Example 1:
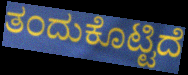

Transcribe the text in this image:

ತಂದುಕೊಟ್ಟಿದೆ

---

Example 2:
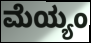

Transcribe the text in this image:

ಮೆಯ್ಯಂ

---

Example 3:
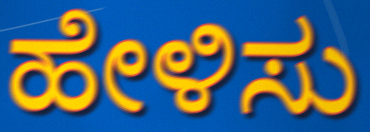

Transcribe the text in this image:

ಹೇಳಿಸು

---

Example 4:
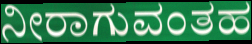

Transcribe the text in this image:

ನೀರಾಗುವಂತಹ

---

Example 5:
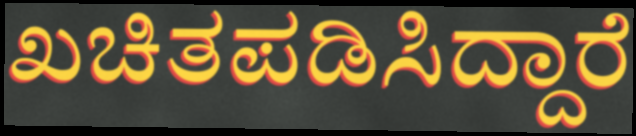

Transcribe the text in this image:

ಖಚಿತಪಡಿಸಿದ್ದಾರೆ